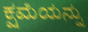
ಕ್ಷಮೆಯನ್ನು